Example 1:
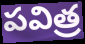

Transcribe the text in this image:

పవిత్ర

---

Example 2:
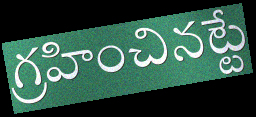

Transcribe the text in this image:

గ్రహించినట్టే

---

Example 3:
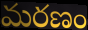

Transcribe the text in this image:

మరణం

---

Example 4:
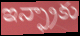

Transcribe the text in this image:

ఇన్ఫ్రాకు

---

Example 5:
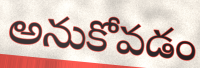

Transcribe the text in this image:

అనుకోవడం